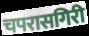
चपरासगिरी